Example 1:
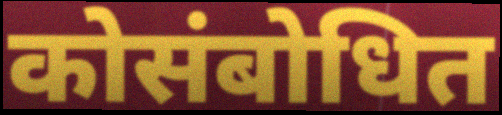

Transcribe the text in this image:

कोसंबोधित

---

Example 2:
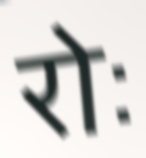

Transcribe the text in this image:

रोः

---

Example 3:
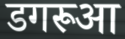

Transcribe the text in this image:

डगरूआ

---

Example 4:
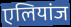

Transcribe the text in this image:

एलियांज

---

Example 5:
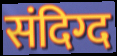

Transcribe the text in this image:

संदिग्द